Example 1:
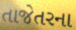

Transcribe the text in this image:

તાજેતરના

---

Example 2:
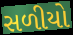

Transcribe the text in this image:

સળીયો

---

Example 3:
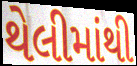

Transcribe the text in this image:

થેલીમાંથી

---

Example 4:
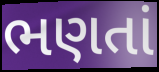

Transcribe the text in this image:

ભણતાં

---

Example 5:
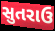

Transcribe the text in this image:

સુતરાઉ